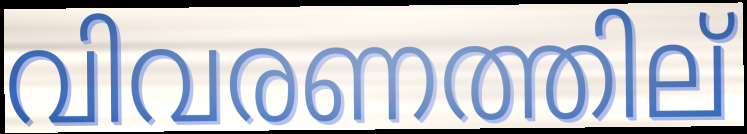
വിവരണത്തില്